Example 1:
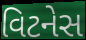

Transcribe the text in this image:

વિટનેસ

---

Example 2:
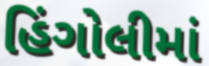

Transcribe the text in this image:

હિંગોલીમાં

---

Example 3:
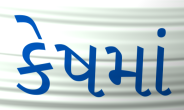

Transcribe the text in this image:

કેષમાં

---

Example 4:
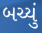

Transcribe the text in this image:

બચ્યું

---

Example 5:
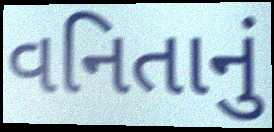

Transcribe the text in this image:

વનિતાનું